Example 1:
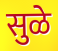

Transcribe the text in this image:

सुळे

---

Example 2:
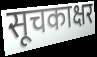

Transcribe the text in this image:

सूचकाक्षर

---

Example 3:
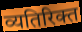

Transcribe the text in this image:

व्यतिरिक्त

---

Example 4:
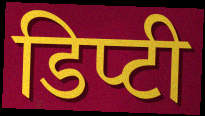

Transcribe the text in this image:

डिप्टी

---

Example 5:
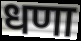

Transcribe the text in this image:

धणा